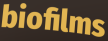
biofilms